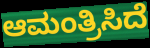
ಆಮಂತ್ರಿಸಿದೆ